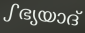
ഽഭ്യയാദ്